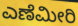
ಎಣೆಮೀರಿ